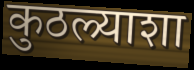
कुठल्याशा